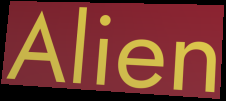
Alien